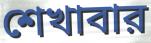
শেখাবার